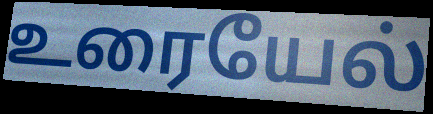
உரையேல்